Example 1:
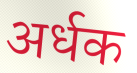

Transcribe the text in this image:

अर्धक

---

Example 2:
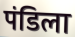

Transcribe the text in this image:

पंडिला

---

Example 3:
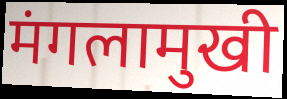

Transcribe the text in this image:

मंगलामुखी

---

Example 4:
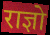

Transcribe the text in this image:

राज्ञो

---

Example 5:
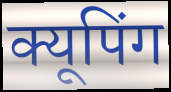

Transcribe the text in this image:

क्यूपिंग